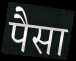
पैसा